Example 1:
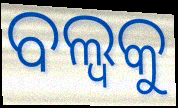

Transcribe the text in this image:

ବଲ୍ବକୁ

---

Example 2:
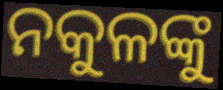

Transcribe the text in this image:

ନକୁଳଙ୍କୁ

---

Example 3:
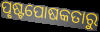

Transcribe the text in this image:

ପୃଷ୍ଟପୋଷକତାରୁ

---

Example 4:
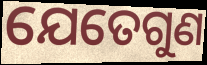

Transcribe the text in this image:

ଯେତେଗୁଣ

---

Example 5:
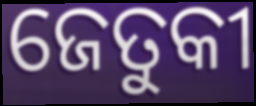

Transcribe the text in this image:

ଜେତୁକୀ